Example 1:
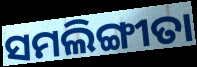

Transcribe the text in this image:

ସମଲିଙ୍ଗୀତା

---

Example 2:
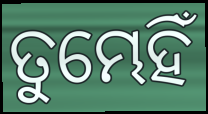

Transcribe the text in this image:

ତୁମ୍ଭେହିଁ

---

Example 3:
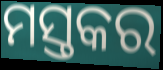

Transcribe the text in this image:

ମସ୍ତକର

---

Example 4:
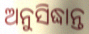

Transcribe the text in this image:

ଅନୁସିଦ୍ଧାନ୍ତ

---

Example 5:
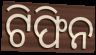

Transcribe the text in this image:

ଟିଫିନ